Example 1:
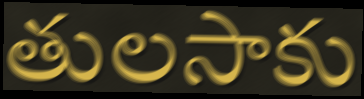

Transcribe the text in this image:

తులసాకు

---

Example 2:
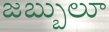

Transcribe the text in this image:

జబ్బులూ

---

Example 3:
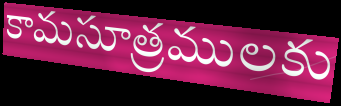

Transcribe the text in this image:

కామసూత్రములకు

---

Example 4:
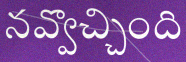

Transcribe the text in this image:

నవ్వొచ్చింది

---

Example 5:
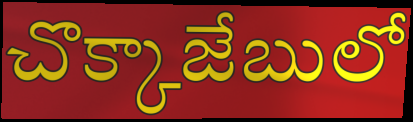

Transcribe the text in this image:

చొక్కాజేబులో